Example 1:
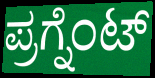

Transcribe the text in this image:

ಪ್ರಗ್ನೆಂಟ್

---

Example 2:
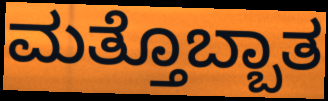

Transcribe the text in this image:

ಮತ್ತೊಬ್ಬಾತ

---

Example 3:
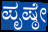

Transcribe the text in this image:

ಪೃಷ್ಠೇ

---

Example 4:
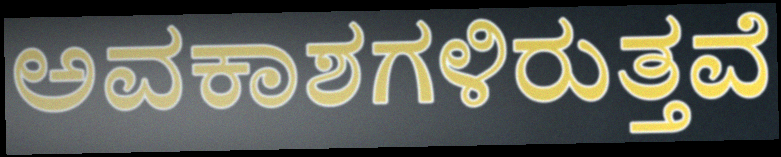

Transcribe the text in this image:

ಅವಕಾಶಗಳಿರುತ್ತವೆ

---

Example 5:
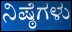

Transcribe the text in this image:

ನಿಷ್ಠೆಗಳು